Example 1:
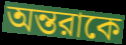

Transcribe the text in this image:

অন্তরাকে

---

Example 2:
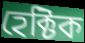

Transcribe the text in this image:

হেক্টিক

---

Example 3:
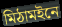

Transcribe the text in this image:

মিঠামইনে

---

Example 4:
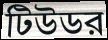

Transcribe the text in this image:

টিউডর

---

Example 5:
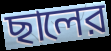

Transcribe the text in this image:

ছালের